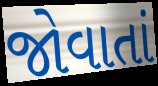
જોવાતાં